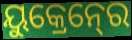
ୟୁକ୍ରେନ୍‍ରେ